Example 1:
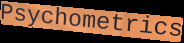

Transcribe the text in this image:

Psychometrics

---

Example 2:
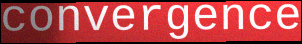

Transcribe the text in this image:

convergence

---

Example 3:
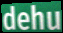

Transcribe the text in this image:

dehu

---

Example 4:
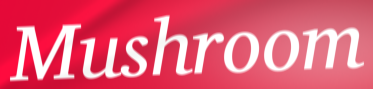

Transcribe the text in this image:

Mushroom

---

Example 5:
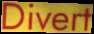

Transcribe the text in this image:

Divert